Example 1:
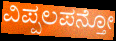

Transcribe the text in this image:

ವಿಪ್ಪಲಪನ್ತೋ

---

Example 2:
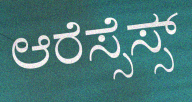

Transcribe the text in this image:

ಆರೆಸ್ಸೆಸ್ಸ್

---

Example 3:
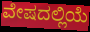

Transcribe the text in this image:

ವೇಷದಲ್ಲಿಯೆ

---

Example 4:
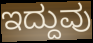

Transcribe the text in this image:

ಇದ್ದುವು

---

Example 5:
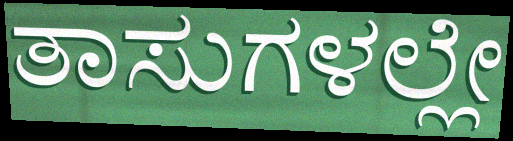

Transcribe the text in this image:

ತಾಸುಗಳಲ್ಲೇ